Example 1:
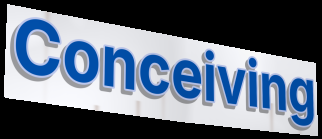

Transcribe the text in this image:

Conceiving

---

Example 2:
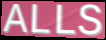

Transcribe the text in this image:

ALLS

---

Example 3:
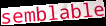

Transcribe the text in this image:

semblable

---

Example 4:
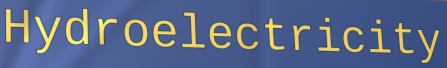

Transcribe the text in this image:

Hydroelectricity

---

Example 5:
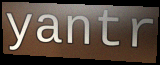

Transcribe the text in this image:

yantr